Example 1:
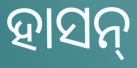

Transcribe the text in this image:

ହାସନ୍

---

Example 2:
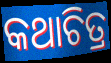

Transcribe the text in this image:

କଥାଚିତ୍ର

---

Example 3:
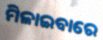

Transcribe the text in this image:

ମିଳାଇବାରେ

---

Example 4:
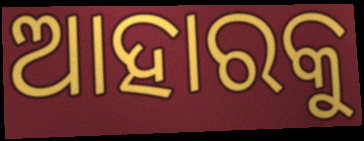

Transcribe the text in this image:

ଆହାରକୁ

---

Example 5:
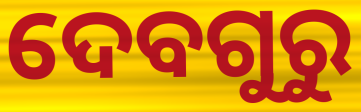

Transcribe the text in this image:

ଦେବଗୁରୁ